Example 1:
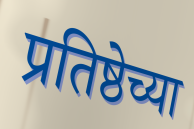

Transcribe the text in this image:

प्रतिष्ठेच्या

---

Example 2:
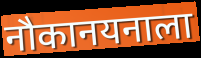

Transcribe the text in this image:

नौकानयनाला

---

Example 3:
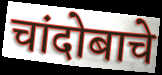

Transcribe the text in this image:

चांदोबाचे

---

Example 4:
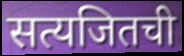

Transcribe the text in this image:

सत्यजितची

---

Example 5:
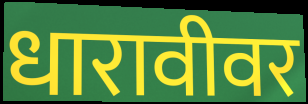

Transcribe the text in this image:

धारावीवर